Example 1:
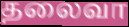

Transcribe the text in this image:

தலைவா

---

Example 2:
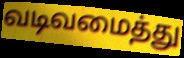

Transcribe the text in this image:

வடிவமைத்து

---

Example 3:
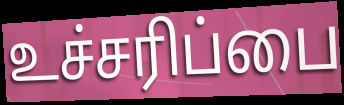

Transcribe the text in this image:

உச்சரிப்பை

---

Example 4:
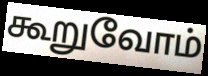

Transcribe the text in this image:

கூறுவோம்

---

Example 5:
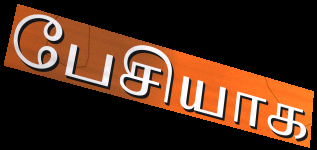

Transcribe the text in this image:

பேசியாக